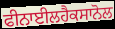
ਫੀਨਾਈਲਹੈਕਸਾਨੋਲ